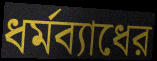
ধর্মব্যাধের